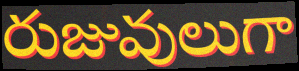
రుజువులుగా